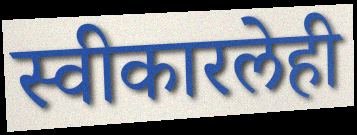
स्वीकारलेही